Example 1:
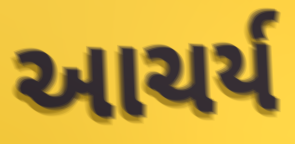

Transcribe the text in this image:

આચર્ય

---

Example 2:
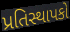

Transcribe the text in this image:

પ્રતિસ્થાપકો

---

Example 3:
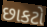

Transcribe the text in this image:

છાકટો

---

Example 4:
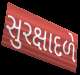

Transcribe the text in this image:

સુરક્ષાદળે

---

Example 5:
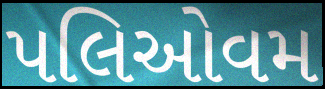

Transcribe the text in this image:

પલિઓવમ